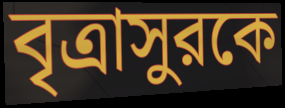
বৃত্রাসুরকে